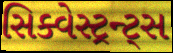
સિક્વેસ્ટ્રન્ટ્સ